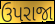
ઉપરાજા